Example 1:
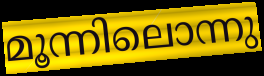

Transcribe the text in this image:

മൂന്നിലൊന്നു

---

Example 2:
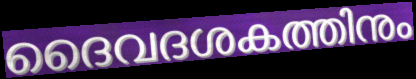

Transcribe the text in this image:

ദൈവദശകത്തിനും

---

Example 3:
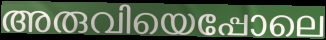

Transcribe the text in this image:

അരുവിയെപ്പോലെ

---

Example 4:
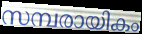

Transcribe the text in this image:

സമ്പരായികം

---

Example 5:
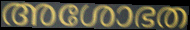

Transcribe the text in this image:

അശോഭത